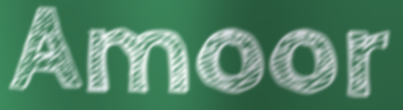
Amoor